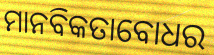
ମାନବିକତାବୋଧର